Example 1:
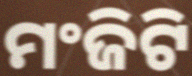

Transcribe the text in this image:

ମଂଜିଟି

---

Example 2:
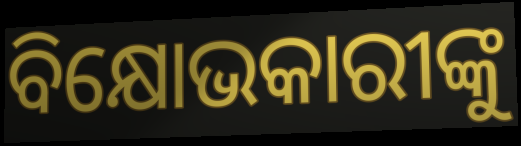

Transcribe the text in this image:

ବିକ୍ଷୋଭକାରୀଙ୍କୁ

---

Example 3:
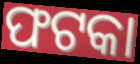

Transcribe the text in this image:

ଫଟକା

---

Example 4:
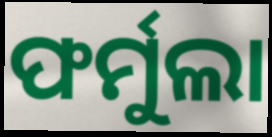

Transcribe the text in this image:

ଫର୍ମୁଲା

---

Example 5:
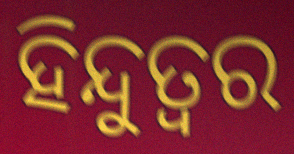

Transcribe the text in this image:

ହିନ୍ଦୁତ୍ବର